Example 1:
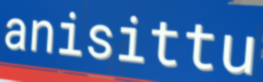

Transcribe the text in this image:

anisittu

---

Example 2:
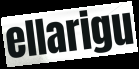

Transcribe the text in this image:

ellarigu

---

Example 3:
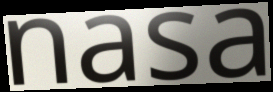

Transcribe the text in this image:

nasa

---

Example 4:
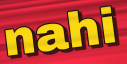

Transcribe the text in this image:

nahi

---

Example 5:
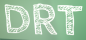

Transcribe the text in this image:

DRT